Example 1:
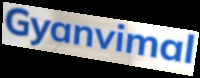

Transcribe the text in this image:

Gyanvimal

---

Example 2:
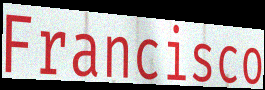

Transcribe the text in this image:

Francisco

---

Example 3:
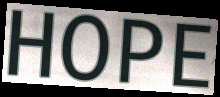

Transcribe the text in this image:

HOPE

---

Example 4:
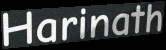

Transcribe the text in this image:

Harinath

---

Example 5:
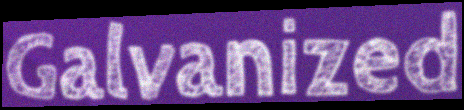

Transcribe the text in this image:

Galvanized